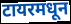
टायरमधून